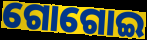
ଗୋଗୋଇ